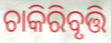
ଚାକିରିବୃତ୍ତି